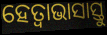
ହେତ୍ଵାଭାସାସ୍ତୁ